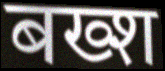
बख्श